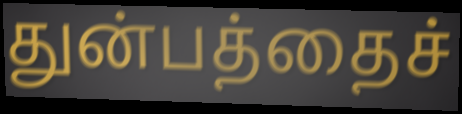
துன்பத்தைச்